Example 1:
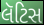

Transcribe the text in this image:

લૅટિસ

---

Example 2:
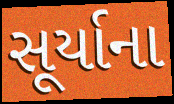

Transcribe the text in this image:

સૂર્યાના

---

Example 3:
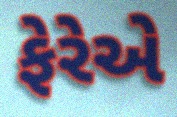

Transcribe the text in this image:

ફેરેએ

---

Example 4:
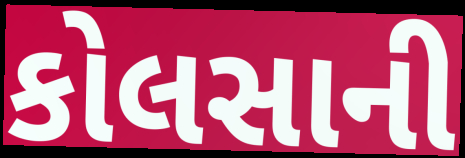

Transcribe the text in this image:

કોલસાની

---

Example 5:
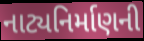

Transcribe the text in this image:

નાટ્યનિર્માણની